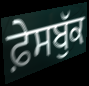
ਫ਼ੇਸਬੁੱਕ